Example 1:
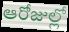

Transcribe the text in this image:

ఆరోజుల్లో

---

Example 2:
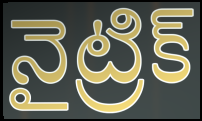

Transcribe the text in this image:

నైట్రిక్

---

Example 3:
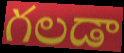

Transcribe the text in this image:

గలడా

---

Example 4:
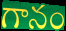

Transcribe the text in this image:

గానం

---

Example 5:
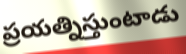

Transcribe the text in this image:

ప్రయత్నిస్తుంటాడు